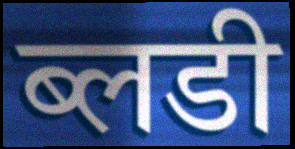
ब्लडी